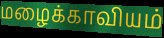
மழைக்காவியம்